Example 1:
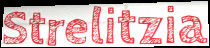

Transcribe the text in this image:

Strelitzia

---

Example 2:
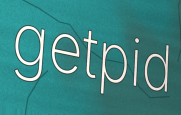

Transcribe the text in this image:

getpid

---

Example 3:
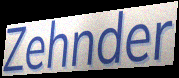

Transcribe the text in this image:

Zehnder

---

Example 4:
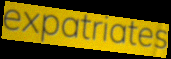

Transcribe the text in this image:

expatriates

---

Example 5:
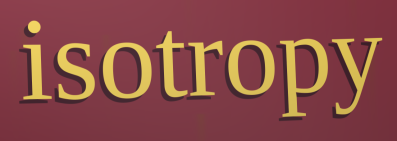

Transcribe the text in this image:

isotropy